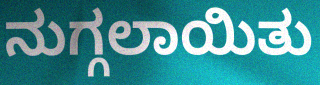
ನುಗ್ಗಲಾಯಿತು